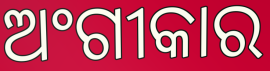
ଅଂଗୀକାର